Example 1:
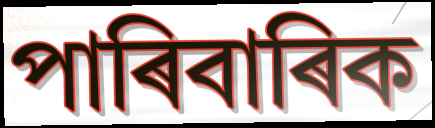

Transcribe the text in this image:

পাৰিবাৰিক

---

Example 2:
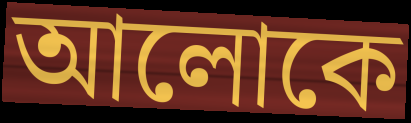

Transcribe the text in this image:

আলোকে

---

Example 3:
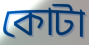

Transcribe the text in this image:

কোটা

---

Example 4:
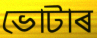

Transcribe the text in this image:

ভোটাৰ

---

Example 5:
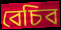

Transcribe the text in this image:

বেচিব